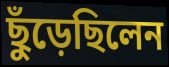
ছুঁড়েছিলেন